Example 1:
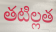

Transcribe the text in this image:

తటిల్లత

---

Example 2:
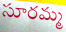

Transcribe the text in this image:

సూరమ్మ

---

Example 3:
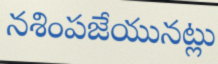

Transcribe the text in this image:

నశింపజేయునట్లు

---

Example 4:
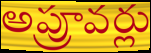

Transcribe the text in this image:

అప్రూవర్లు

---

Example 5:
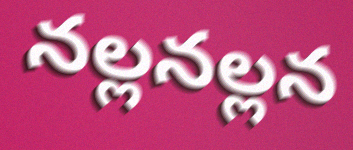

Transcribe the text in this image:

నల్లనల్లన